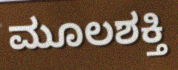
ಮೂಲಶಕ್ತಿ